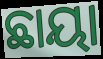
ଛାୟା